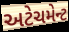
અટેચમેન્ટ